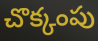
చొక్కంపు